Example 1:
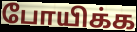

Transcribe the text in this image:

போயிக்க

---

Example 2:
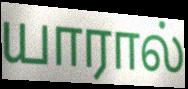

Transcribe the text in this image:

யாரால்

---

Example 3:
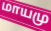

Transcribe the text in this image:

மாயமு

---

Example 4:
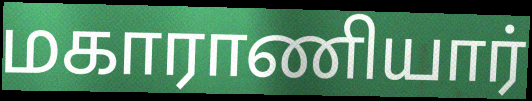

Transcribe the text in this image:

மகாராணியார்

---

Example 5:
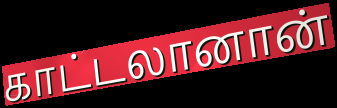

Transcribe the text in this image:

காட்டலானான்